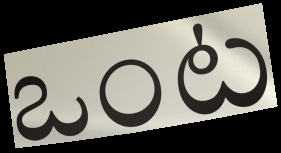
ఒంట